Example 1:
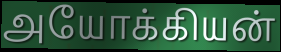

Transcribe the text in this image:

அயோக்கியன்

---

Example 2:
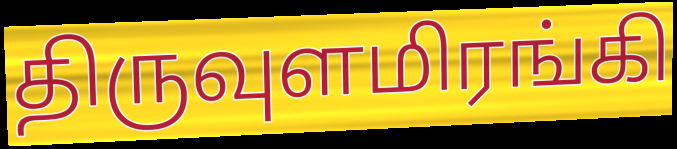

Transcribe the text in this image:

திருவுளமிரங்கி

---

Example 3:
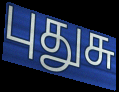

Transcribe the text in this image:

புதுசு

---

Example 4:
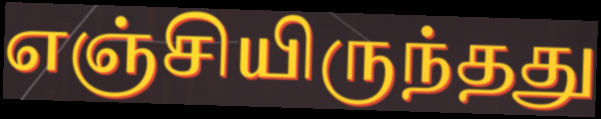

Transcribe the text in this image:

எஞ்சியிருந்தது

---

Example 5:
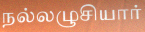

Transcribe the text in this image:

நல்லழுசியார்